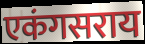
एकंगसराय